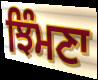
ਝਿੰਮਣਾ